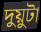
দুয়ুটা